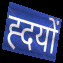
ह्दयों